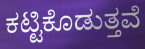
ಕಟ್ಟಿಕೊಡುತ್ತವೆ